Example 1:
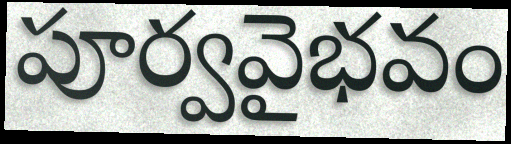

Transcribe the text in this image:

పూర్వవైభవం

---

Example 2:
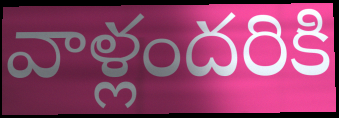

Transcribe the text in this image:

వాళ్లందరికి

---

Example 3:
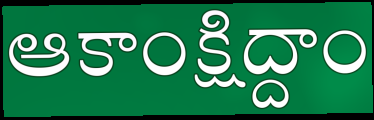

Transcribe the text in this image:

ఆకాంక్షిద్దాం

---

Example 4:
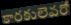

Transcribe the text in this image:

కారకులెవరో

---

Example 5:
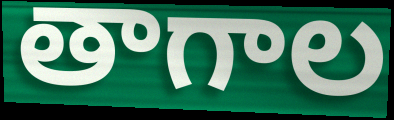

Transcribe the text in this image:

తాగాల